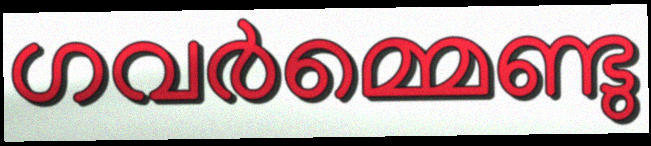
ഗവർമ്മെണ്ടു